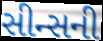
સીન્સની